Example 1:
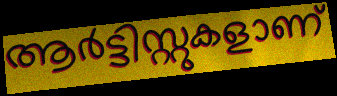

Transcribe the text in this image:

ആർട്ടിസ്റ്റുകളാണ്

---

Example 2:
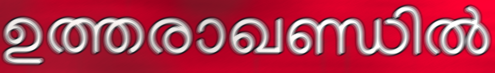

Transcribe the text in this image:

ഉത്തരാഖണ്ഡിൽ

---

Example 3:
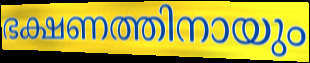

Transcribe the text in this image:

ഭക്ഷണത്തിനായും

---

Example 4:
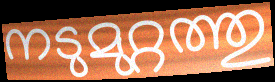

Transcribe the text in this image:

നടുമുറ്റത്തു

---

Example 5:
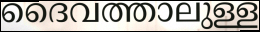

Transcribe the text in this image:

ദൈവത്താലുള്ള